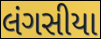
લંગસીયા